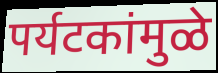
पर्यटकांमुळे